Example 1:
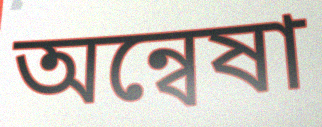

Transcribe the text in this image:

অন্বেষা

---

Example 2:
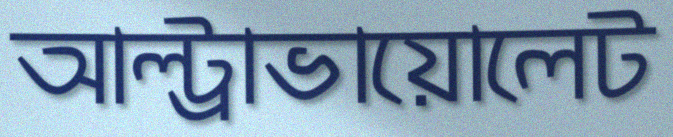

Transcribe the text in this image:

আল্ট্রাভায়োলেট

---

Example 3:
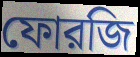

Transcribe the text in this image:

ফোরজি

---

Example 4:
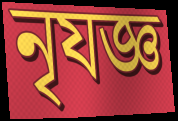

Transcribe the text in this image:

নৃযজ্ঞ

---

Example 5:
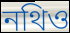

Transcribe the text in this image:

নথিও